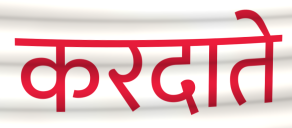
करदाते